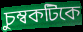
চুম্বকটিকে